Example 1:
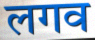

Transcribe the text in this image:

लगव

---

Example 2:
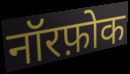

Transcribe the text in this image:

नॉरफ़ोक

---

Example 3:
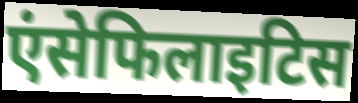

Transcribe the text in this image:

एंसेफिलाइटिस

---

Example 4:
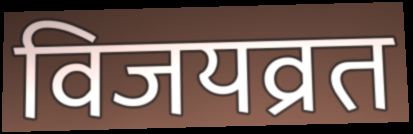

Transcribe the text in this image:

विजयव्रत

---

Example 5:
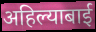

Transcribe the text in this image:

अहिल्याबाई